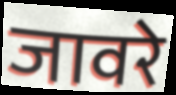
जावरे